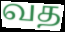
வத